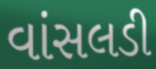
વાંસલડી